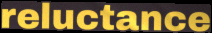
reluctance